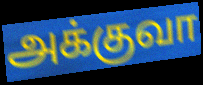
அக்குவா